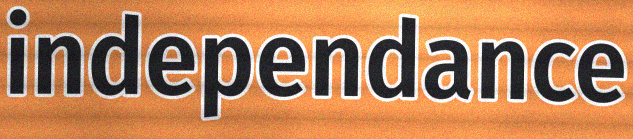
independance